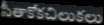
సీతాకోకచిలుకలు